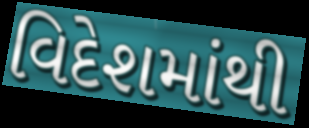
વિદેશમાંથી